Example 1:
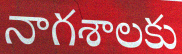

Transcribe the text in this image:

నాగశాలకు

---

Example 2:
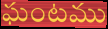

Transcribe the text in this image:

ఘంటము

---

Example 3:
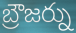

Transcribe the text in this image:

బ్రౌజర్ను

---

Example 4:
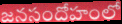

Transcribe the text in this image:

జనసందోహంలో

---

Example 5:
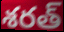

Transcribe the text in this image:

శరత్